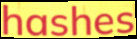
hashes